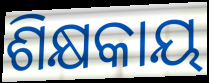
ଶିକ୍ଷକାୟ